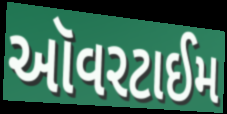
ઑવરટાઈમ